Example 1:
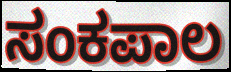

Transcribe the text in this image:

ಸಂಕಪಾಲ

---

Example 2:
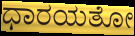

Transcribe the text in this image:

ಧಾರಯತೋ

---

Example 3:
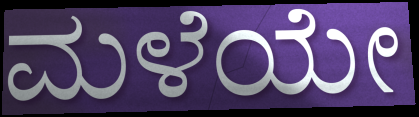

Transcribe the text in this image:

ಮಳೆಯೇ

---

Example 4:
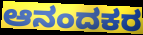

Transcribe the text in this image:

ಆನಂದಕರ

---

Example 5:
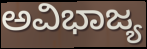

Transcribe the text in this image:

ಅವಿಭಾಜ್ಯ